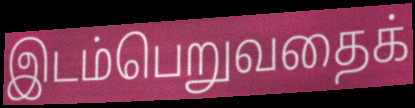
இடம்பெறுவதைக்